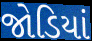
જોડિયાં